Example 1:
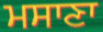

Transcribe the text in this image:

ਮਸਾਣਾ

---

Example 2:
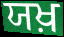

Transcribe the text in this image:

ਯਖ਼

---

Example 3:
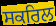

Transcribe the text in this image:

ਸਕਰਿਲ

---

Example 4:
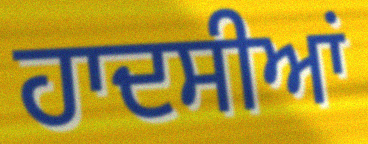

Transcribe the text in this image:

ਹਾਦਸੀਆਂ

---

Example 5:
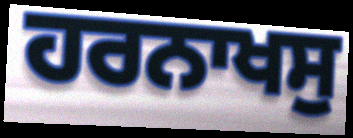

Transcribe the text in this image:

ਹਰਨਾਖਸੁ